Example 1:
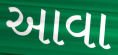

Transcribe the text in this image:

આવા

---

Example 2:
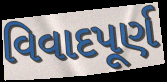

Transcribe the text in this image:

વિવાદપૂર્ણ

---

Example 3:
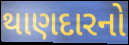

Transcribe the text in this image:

થાણદારનો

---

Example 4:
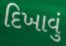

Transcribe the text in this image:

દિખાવું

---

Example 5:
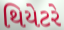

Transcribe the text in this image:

થિયેટરે